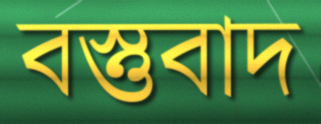
বস্তুবাদ